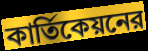
কার্তিকেয়নের